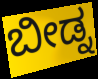
ಬೀಡ್ನ